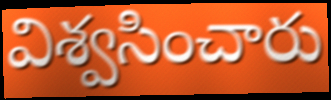
విశ్వసించారు